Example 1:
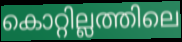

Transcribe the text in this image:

കൊറ്റില്ലത്തിലെ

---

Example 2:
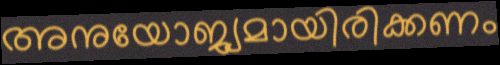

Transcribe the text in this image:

അനുയോജ്യമായിരിക്കണം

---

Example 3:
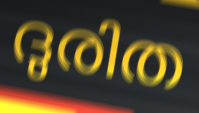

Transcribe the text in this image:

ദുരിത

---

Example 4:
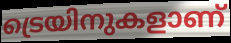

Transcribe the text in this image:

ട്രെയിനുകളാണ്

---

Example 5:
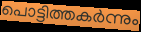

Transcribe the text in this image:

പൊട്ടിത്തകർന്നും